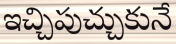
ఇచ్చిపుచ్చుకునే